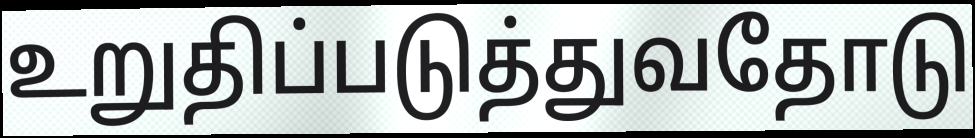
உறுதிப்படுத்துவதோடு